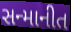
સન્માનીત